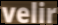
velir